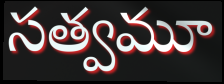
సత్వమూ